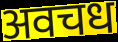
अवचध